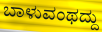
ಬಾಳುವಂಥದ್ದು